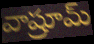
వాష్రూమ్